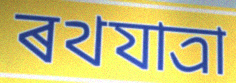
ৰথযাত্ৰা